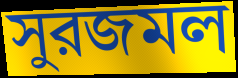
সুরজমল